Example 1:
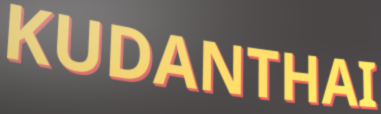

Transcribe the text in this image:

KUDANTHAI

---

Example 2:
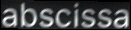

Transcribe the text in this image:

abscissa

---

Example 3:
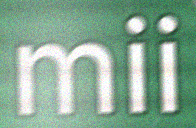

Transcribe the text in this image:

mii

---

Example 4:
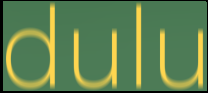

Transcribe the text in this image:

dulu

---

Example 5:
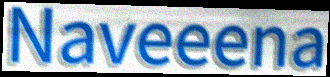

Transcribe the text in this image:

Naveeena